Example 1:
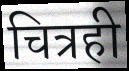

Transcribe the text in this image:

चित्रही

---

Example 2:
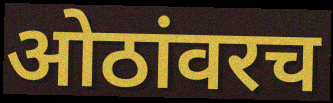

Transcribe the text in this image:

ओठांवरच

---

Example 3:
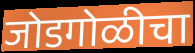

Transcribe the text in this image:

जोडगोळीचा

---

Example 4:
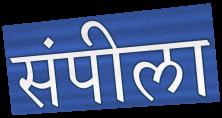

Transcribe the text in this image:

संपीला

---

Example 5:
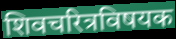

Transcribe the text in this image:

शिवचरित्रविषयक